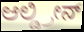
ಆಲ್ಡ್ರೀನ್